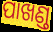
ପାଖଣ୍ଡ